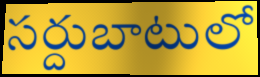
సర్దుబాటులో